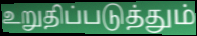
உறுதிப்படுத்தும்